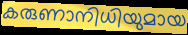
കരുണാനിധിയുമായ